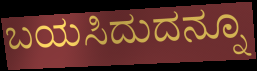
ಬಯಸಿದುದನ್ನೂ